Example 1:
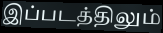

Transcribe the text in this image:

இப்படத்திலும்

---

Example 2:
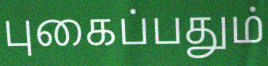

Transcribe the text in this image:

புகைப்பதும்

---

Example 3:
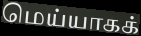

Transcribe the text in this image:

மெய்யாகக்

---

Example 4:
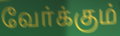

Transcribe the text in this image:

வேர்க்கும்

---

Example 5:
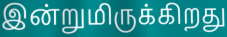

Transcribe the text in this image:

இன்றுமிருக்கிறது